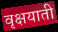
वृक्षयाती